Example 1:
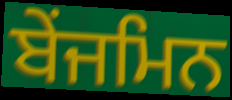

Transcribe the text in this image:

ਬੇਂਜਮਿਨ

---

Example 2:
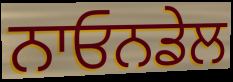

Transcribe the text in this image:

ਨਾਓਨਡੇਲ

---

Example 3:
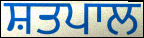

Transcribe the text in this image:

ਸ਼ਤਪਾਲ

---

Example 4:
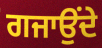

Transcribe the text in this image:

ਗਜਾਉਂਦੇ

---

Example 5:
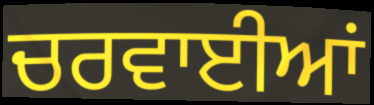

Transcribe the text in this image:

ਚਰਵਾਈਆਂ